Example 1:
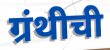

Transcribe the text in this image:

ग्रंथीची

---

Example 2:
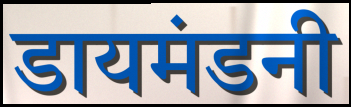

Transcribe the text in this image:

डायमंडनी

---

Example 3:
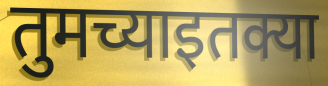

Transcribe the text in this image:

तुमच्याइतक्या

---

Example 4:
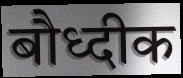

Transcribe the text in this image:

बौध्दीक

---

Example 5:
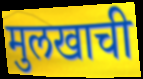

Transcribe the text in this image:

मुलखाची